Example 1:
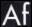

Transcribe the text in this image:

Af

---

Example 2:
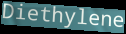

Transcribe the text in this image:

Diethylene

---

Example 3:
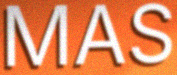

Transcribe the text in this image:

MAS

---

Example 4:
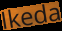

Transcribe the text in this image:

Ikeda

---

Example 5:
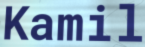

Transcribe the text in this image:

Kamil